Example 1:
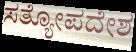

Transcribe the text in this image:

ಸತ್ಯೋಪದೇಶ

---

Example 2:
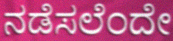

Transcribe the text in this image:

ನಡೆಸಲೆಂದೇ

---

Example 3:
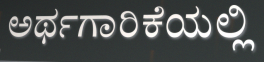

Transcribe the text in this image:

ಅರ್ಥಗಾರಿಕೆಯಲ್ಲಿ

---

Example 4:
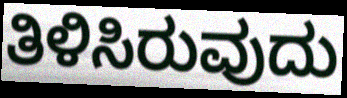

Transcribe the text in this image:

ತಿಳಿಸಿರುವುದು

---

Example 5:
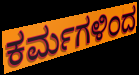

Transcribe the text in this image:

ಕರ್ಮಗಳಿಂದ